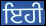
ਇਹੀ